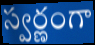
స్వర్ణంగా